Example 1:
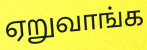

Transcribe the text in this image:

ஏறுவாங்க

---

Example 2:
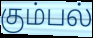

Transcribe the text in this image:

கும்பல்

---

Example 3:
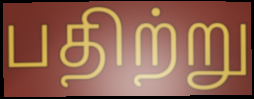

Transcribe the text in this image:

பதிற்று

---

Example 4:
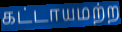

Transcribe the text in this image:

கட்டாயமற்ற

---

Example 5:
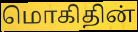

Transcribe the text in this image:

மொகிதின்